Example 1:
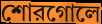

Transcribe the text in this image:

শোরগোলে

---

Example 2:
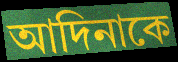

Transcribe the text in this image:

আদিনাকে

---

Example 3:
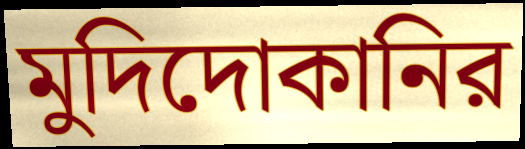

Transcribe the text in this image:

মুদিদোকানির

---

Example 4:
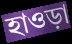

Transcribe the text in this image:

হাওড়া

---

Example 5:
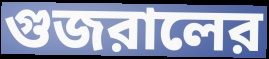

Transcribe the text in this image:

গুজরালের